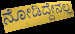
ನೋಡಿದ್ದೇನಲ್ಲ